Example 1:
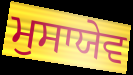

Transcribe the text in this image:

ਮੁਸਾਯੇਵ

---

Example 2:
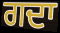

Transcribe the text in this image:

ਗਦਾ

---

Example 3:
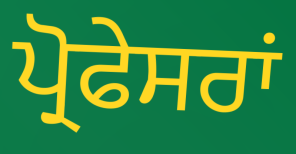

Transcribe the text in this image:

ਪ੍ਰੋਫੇਸਰਾਂ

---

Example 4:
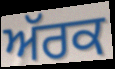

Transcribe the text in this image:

ਅੱਰਕ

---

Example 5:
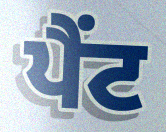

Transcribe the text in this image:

ਪੈਂਟ